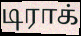
டிராக்